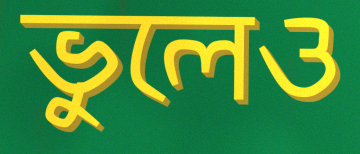
ভুলেও